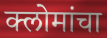
क्लोमांचा